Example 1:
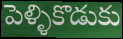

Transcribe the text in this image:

పెళ్ళికొడుకు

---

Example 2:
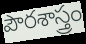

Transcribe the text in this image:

పౌరశాస్త్రం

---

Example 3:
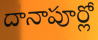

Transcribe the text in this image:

దానాపూర్లో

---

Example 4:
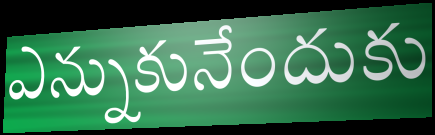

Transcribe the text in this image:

ఎన్నుకునేందుకు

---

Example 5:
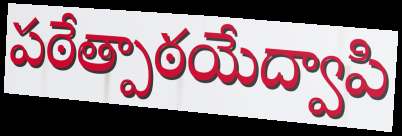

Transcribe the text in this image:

పఠేత్పాఠయేద్వాపి